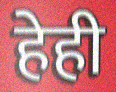
हेही